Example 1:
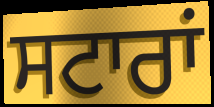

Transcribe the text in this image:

ਸਟਾਰਾਂ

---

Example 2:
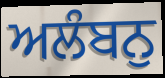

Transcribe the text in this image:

ਅਲੰਬਨੁ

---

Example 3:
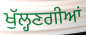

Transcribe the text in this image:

ਖੁੱਲ੍ਹਣਗੀਆਂ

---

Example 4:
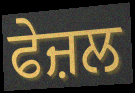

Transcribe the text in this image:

ਫੇਜ਼ਲ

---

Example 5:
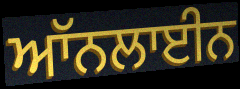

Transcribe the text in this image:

ਆੱਨਲਾਈਨ